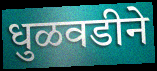
धुळवडीने